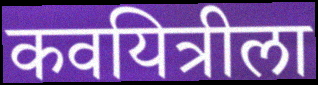
कवयित्रीला